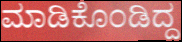
ಮಾಡಿಕೊಂಡಿದ್ದ